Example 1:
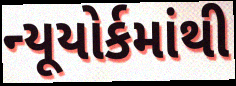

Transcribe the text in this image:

ન્યૂયોર્કમાંથી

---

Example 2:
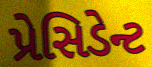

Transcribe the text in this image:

પ્રેસિડેન્ટ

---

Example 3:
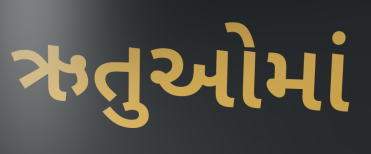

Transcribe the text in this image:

ઋતુઓમાં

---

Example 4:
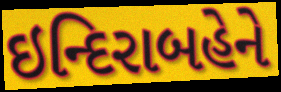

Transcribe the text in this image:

ઇન્દિરાબહેને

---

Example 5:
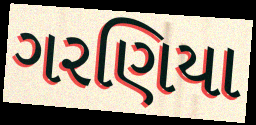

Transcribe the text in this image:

ગરણિયા